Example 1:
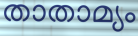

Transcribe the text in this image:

താതാമ്യം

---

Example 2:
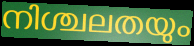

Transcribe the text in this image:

നിശ്ചലതയും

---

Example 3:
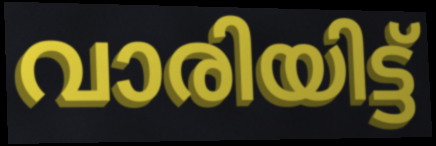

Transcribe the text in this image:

വാരിയിട്ട്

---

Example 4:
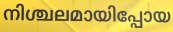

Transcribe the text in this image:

നിശ്ചലമായിപ്പോയ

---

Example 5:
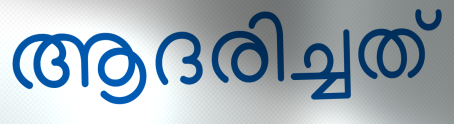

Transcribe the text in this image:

ആദരിച്ചത്